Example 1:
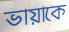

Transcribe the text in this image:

ভায়াকে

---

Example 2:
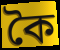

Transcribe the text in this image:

কৈ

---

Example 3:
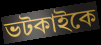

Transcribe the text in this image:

ভটকাইকে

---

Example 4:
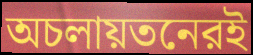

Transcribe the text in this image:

অচলায়তনেরই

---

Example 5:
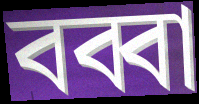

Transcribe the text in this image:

বব্বা